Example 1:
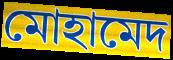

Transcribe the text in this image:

মোহামেদ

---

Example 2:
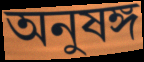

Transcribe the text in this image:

অনুষঙ্গ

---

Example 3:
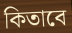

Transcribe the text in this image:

কিতাবে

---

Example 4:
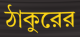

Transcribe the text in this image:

ঠাকুরের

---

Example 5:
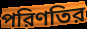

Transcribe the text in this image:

পরিণতির